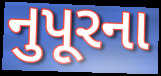
નુપૂરના